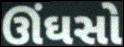
ઊંઘસો